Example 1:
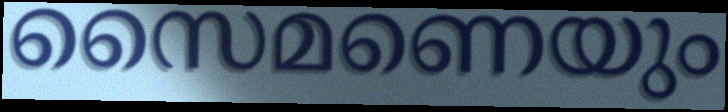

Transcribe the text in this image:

സൈമണെയും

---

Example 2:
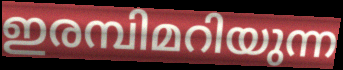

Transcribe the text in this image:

ഇരമ്പിമറിയുന്ന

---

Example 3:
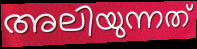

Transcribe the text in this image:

അലിയുന്നത്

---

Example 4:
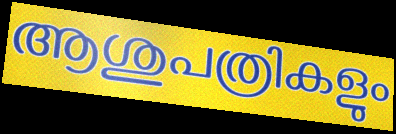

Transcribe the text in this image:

ആശുപത്രികളും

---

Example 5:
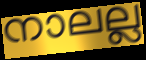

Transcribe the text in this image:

നാലല്ല